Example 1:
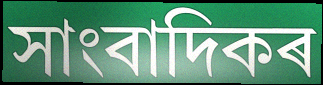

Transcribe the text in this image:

সাংবাদিকৰ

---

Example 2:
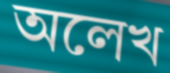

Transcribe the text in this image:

অলেখ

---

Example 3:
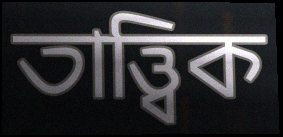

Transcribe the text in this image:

তাত্ত্বিক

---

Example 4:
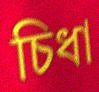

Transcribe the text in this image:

চিধা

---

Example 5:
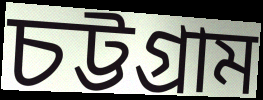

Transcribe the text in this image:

চট্টগ্ৰাম